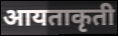
आयताकृती